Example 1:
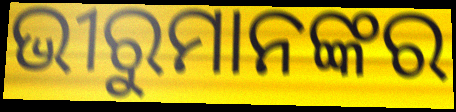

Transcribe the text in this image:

ଭୀରୁମାନଙ୍କର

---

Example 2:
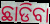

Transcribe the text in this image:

ଛାଡିବା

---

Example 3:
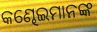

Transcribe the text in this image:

କଣ୍ଢେଇମାନଙ୍କ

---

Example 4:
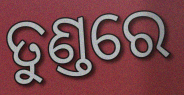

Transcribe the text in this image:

ତୁଣ୍ଡରେ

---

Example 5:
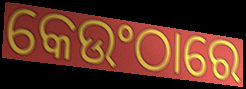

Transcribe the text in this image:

କେଉଂଠାରେ